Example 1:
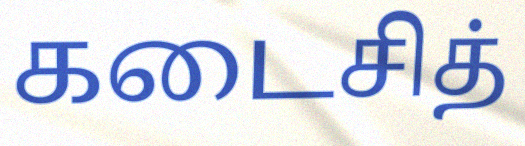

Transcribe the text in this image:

கடைசித்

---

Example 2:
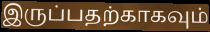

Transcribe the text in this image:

இருப்பதற்காகவும்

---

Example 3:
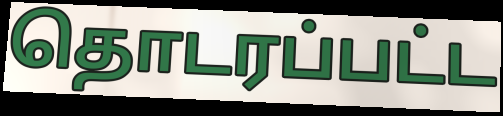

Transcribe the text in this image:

தொடரப்பட்ட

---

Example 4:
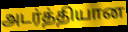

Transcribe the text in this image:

அடர்த்தியான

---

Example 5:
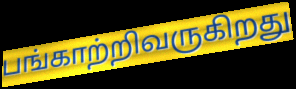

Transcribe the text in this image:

பங்காற்றிவருகிறது